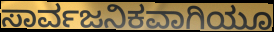
ಸಾರ್ವಜನಿಕವಾಗಿಯೂ